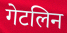
गेटलिन